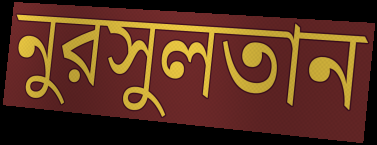
নুরসুলতান